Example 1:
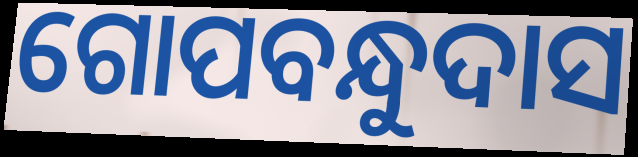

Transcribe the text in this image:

ଗୋପବନ୍ଧୁଦାସ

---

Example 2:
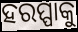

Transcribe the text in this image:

ହରପ୍ପାକୁ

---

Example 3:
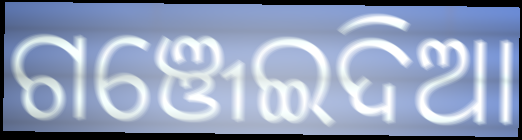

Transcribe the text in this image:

ଗଞ୍ଜେଇଦିଆ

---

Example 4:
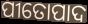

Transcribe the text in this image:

ପୀତୋପାଦ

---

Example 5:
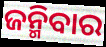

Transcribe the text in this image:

ଜନ୍ମିବାର